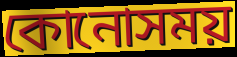
কোনোসময়